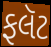
ફલૅટ